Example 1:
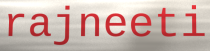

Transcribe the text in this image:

rajneeti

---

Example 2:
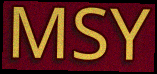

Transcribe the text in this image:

MSY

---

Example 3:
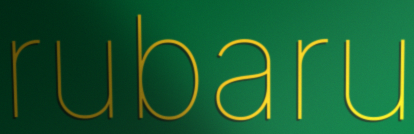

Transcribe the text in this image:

rubaru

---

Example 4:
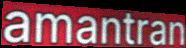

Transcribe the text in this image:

amantran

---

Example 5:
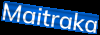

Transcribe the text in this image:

Maitraka